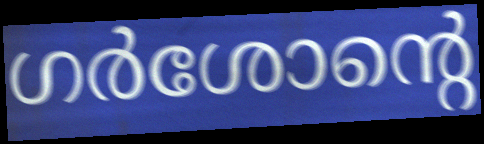
ഗർശോന്റെ